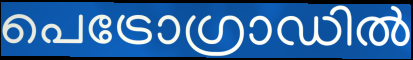
പെട്രോഗ്രാഡിൽ